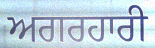
ਅਗਰਹਾਰੀ